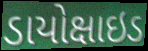
ડાયોક્ષાઇડ